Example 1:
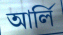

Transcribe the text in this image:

আৰ্লি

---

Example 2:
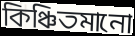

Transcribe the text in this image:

কিঞ্চিতমানো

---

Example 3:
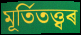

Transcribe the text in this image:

মূৰ্তিতত্ত্বৰ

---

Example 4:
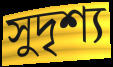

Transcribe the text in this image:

সুদৃশ্য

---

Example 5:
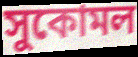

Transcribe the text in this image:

সুকোমল